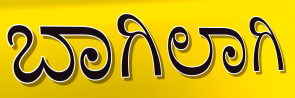
ಬಾಗಿಲಾಗಿ